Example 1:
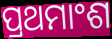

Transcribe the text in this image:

ପ୍ରଥମାଂଶ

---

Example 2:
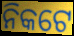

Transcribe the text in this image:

ନିକଟେ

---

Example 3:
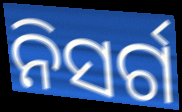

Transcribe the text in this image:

ନିସର୍ଗ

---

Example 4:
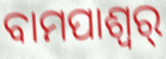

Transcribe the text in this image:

ବାମପାଶ୍ୱର୍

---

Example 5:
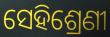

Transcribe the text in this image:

ସେହିଶ୍ରେଣୀ